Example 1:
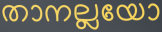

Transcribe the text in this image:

താനല്ലയോ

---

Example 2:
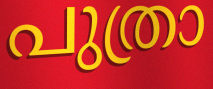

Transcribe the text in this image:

പുത്രാ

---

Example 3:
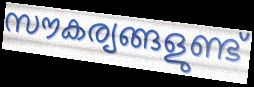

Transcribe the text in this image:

സൗകര്യങ്ങളുണ്ട്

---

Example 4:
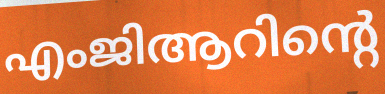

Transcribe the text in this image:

എംജിആറിന്റെ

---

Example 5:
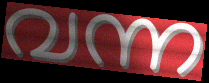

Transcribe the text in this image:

വന്ന